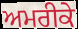
ਅਮਰੀਕੇ